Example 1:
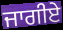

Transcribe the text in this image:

ਜਾਗੀਏ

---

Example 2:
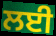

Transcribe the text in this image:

ਲਈ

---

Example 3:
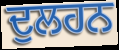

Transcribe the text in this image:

ਦੁਲਹਨ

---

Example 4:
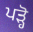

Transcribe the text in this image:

ਪੜ੍ਹੋ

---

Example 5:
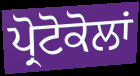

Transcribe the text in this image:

ਪ੍ਰੋਟੋਕੋਲਾਂ